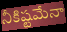
నీకిష్టమేనా